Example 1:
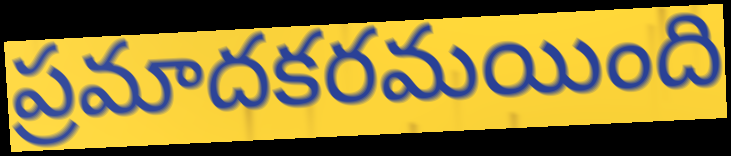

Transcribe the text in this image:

ప్రమాదకరమయింది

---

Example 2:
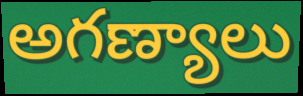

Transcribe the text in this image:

అగణ్యాలు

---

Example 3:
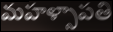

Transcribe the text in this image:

మహళ్సాపతి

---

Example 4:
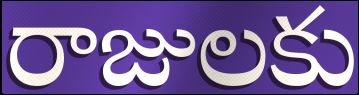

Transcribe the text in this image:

రాజులకు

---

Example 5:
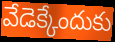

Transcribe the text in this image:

వేడెక్కేందుకు